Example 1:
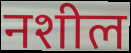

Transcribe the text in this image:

नशील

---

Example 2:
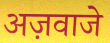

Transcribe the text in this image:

अज़वाजे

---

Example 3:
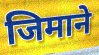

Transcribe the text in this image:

जिमाने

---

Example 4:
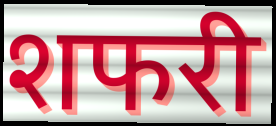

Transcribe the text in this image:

शफरी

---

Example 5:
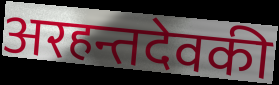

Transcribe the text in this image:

अरहन्तदेवकी